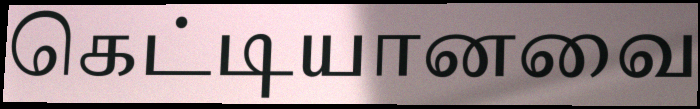
கெட்டியானவை